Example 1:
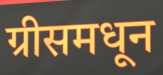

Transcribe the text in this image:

ग्रीसमधून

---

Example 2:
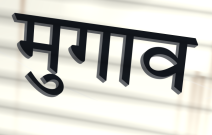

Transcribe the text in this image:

मुगाव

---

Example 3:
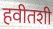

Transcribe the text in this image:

हवीतशी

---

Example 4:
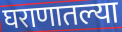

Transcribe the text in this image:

घराणातल्या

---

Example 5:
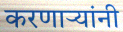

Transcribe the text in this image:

करणाऱ्यांनी